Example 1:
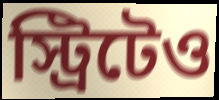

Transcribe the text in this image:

স্ট্রিটেও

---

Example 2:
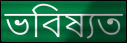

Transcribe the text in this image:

ভবিষ্যত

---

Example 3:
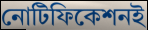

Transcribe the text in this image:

নোটিফিকেশনই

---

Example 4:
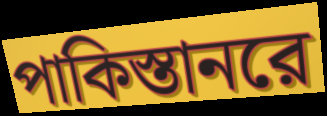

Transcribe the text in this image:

পাকিস্তানরে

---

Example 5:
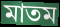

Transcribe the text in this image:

মাতম